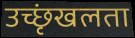
उच्छृंखलता